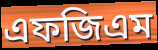
এফজিএম